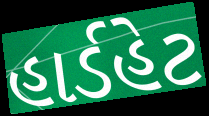
હાર્ડહેટ